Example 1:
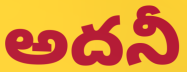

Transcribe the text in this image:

అదనీ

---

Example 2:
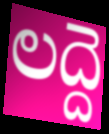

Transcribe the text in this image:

లద్దె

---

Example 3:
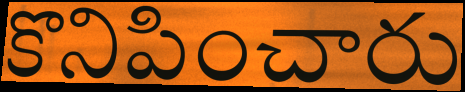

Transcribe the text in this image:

కొనిపించారు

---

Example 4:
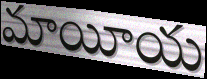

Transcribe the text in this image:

మాయీయ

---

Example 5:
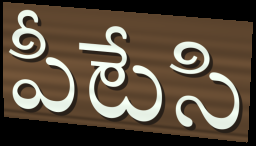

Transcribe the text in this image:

పీటేసి